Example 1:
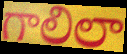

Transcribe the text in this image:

గాలిలా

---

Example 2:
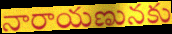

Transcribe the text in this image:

నారాయణునకు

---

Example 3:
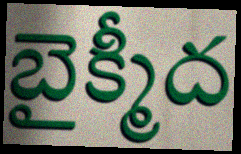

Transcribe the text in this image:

బైక్మీద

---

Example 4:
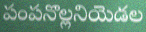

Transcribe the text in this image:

పంపనొల్లనియెడల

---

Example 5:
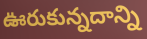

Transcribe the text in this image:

ఊరుకున్నదాన్ని